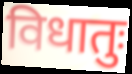
विधातुः